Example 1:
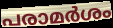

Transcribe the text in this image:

പരാമർശം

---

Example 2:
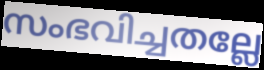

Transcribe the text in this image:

സംഭവിച്ചതല്ലേ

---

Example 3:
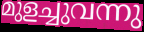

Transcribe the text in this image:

മുളച്ചുവന്നു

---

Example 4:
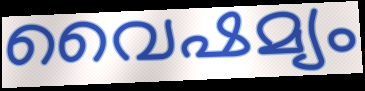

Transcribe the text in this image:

വൈഷമ്യം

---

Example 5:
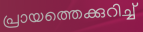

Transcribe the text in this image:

പ്രായത്തെക്കുറിച്ച്